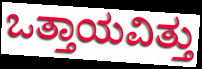
ಒತ್ತಾಯವಿತ್ತು